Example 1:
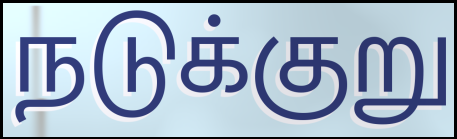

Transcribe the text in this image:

நடுக்குறு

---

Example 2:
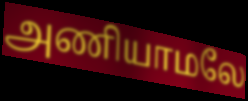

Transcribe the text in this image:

அணியாமலே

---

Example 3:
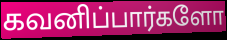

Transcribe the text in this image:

கவனிப்பார்களோ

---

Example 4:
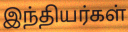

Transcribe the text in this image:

இந்தியர்கள்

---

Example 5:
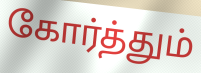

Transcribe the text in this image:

கோர்த்தும்